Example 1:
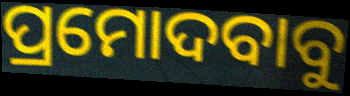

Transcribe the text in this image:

ପ୍ରମୋଦବାବୁ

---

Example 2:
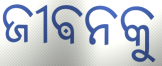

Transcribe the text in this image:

ଜୀଵନକୁ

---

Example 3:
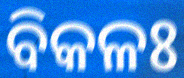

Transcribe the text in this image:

ବିକଳଃ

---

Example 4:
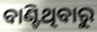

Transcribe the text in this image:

ବାଣ୍ଟିଥିବାରୁ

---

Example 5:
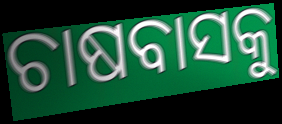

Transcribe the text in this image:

ଚାଷବାସକୁ